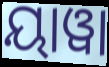
ୟାୱା